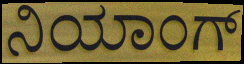
ನಿಯಾಂಗ್